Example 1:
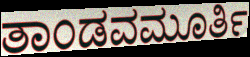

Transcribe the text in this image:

ತಾಂಡವಮೂರ್ತಿ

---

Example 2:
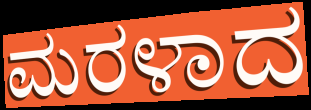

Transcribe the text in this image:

ಮರಳಾದ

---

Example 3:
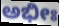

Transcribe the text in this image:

ಅಭೀಃ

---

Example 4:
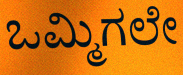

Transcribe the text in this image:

ಒಮ್ಮಿಗಲೇ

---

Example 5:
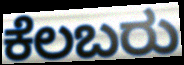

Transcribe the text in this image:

ಕೆಲಬರು